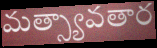
మత్స్యావతార